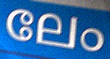
ലേം